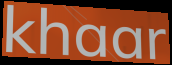
khaar